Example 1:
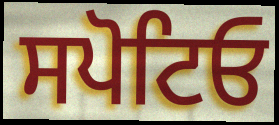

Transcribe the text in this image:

ਸਪੋਟਿਓ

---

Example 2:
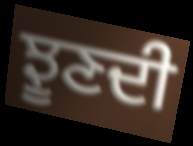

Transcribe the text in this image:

ਝੂਣਦੀ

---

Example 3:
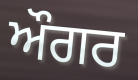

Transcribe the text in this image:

ਔਗਰ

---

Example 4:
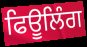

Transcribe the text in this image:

ਫਿਊਲਿੰਗ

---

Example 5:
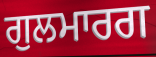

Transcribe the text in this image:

ਗੁਲਮਾਰਗ